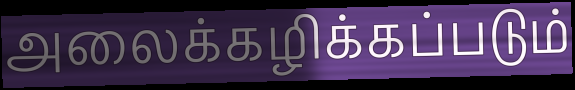
அலைக்கழிக்கப்படும்